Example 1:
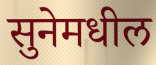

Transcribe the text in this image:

सुनेमधील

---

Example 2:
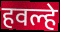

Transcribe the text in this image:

हवल्हे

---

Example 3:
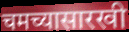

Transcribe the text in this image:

चमच्यासारखी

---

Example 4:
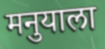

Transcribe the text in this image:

मनुयाला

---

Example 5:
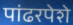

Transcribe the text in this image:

पांढरपेशे